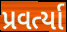
પ્રવર્ત્યા